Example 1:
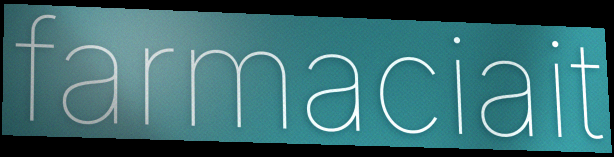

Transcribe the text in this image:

farmaciait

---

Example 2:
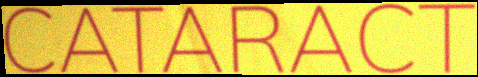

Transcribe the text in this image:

CATARACT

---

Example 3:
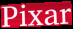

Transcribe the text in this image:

Pixar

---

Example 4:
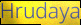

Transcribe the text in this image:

Hrudaya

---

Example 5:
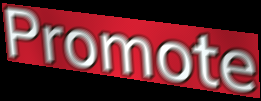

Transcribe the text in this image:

Promote